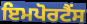
ਇਮਪੋਰਟੈਂਸ